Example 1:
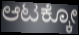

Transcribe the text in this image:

ಆಟಕ್ಕೋ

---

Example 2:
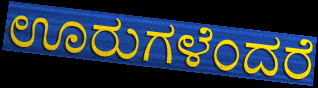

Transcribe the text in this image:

ಊರುಗಳೆಂದರೆ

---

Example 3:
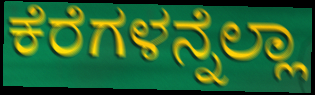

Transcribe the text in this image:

ಕೆರೆಗಳನ್ನೆಲ್ಲಾ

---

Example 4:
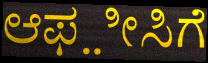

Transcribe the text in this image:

ಆಫ಼ೀಸಿಗೆ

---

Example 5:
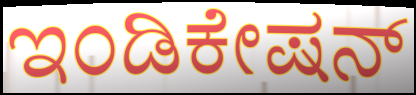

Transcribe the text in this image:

ಇಂಡಿಕೇಷನ್